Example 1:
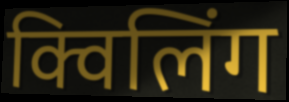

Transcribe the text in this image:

क्विलिंग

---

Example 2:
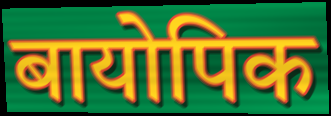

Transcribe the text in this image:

बायोपिक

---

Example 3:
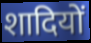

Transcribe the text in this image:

शादियों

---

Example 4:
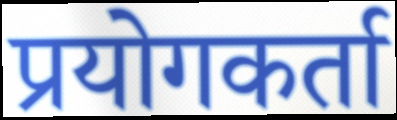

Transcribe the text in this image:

प्रयोगकर्ता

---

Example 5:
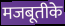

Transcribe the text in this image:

मजबूतीके